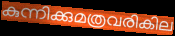
കുന്നിക്കുമത്രവരികില